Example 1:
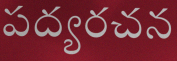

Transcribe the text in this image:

పద్యరచన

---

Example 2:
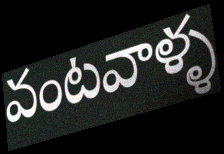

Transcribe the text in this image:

వంటవాళ్ళ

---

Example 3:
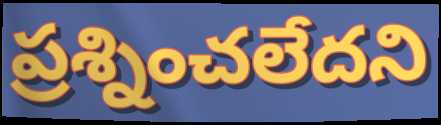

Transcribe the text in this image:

ప్రశ్నించలేదని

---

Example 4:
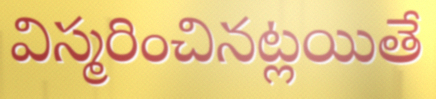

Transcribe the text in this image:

విస్మరించినట్లయితే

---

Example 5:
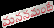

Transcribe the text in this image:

మననమంటే